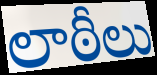
లాఠీలు